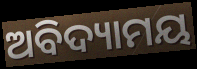
ଅବିଦ୍ୟାମୟ